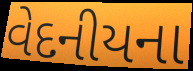
વેદનીયના